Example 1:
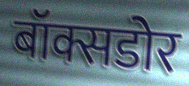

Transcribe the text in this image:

बॉक्सडोर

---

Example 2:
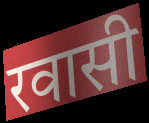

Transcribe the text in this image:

रवासी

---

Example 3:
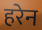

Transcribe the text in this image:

हरेन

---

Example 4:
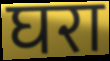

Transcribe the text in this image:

घरा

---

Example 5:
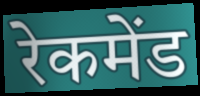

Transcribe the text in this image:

रेकमेंड